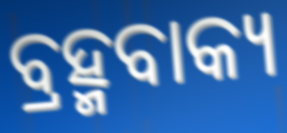
ବ୍ରହ୍ମବାକ୍ୟ